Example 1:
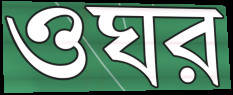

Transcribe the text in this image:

ওঘর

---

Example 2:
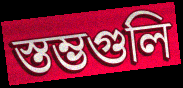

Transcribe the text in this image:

স্তম্ভগুলি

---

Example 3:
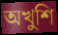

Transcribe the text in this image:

অখুশি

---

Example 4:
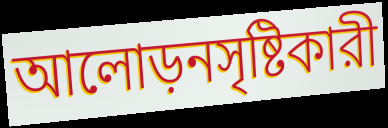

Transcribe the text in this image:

আলোড়নসৃষ্টিকারী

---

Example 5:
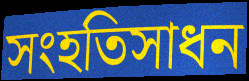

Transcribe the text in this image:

সংহতিসাধন